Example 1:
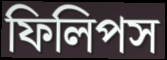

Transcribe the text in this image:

ফিলিপস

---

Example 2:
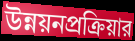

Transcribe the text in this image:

উন্নয়নপ্রক্রিয়ার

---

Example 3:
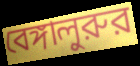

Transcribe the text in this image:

বেঙ্গালুরুর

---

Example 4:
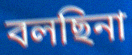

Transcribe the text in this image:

বলছিনা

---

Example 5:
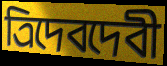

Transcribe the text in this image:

ত্রিদেবদেবী